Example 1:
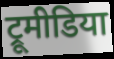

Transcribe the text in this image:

ट्रूमीडिया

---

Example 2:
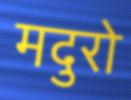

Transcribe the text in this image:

मदुरो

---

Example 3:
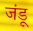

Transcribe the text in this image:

जंडू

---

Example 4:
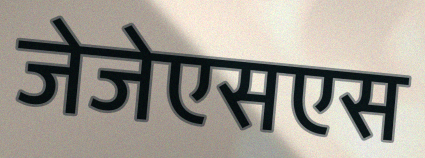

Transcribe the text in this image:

जेजेएसएस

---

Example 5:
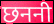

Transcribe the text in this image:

छननी